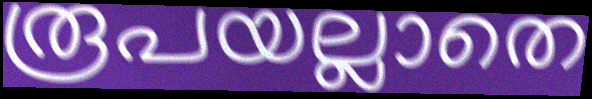
രൂപയല്ലാതെ